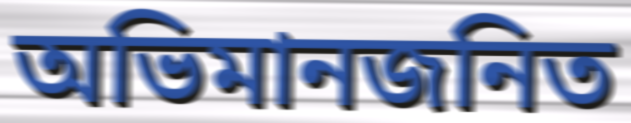
অভিমানজনিত